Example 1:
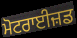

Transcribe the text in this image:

ਮੋਟਰਾਈਜ਼ਡ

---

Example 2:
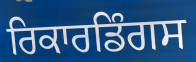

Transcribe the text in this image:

ਰਿਕਾਰਡਿੰਗਸ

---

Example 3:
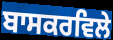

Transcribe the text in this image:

ਬਾਸਕਰਵਿਲੇ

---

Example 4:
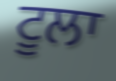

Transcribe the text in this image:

ਟੂਲਾ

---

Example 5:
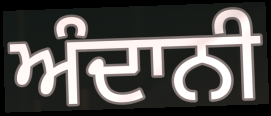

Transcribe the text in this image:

ਅੰਦਾਨੀ